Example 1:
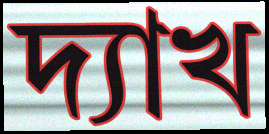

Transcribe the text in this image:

দ্যাখ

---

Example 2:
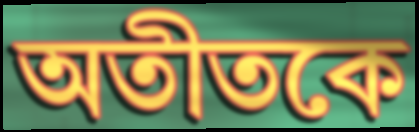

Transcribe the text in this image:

অতীতকে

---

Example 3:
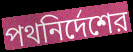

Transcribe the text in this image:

পথনির্দেশের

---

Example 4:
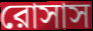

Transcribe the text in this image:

রোসাস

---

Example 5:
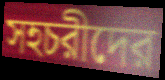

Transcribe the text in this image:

সহচরীদের